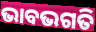
ଭାବଭଗତି